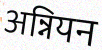
अन्नियन